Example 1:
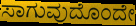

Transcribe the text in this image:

ಸಾಗುವುದೊಂದೇ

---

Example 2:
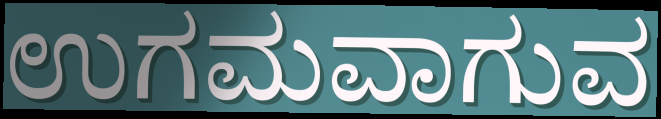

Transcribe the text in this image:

ಉಗಮವಾಗುವ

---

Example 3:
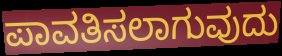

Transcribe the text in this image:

ಪಾವತಿಸಲಾಗುವುದು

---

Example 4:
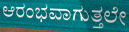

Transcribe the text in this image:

ಆರಂಭವಾಗುತ್ತಲೇ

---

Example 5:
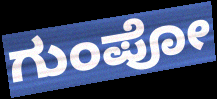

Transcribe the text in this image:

ಗುಂಪೋ